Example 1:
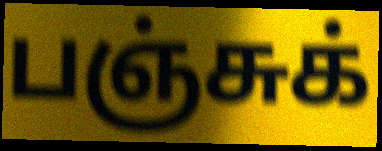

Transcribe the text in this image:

பஞ்சுக்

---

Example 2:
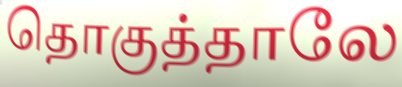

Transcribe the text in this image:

தொகுத்தாலே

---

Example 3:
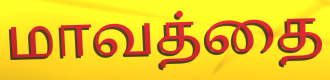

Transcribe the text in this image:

மாவத்தை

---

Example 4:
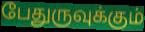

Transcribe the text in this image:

பேதுருவுக்கும்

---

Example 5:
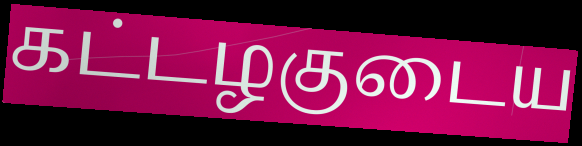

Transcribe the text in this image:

கட்டழகுடைய